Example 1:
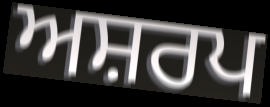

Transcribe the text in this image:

ਅਸ਼ਰਪ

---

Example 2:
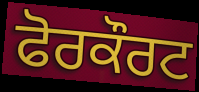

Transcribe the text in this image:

ਫੋਰਕੌਰਟ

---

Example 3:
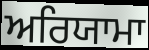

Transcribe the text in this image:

ਅਰਿਯਾਮਾ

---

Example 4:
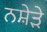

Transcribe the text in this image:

ਨਸ਼ੇੜੇ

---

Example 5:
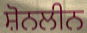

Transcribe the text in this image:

ਸ਼ੋਨਲੀਨ